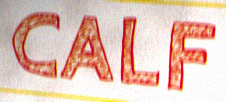
CALF